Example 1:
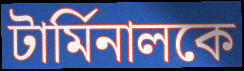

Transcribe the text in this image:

টার্মিনালকে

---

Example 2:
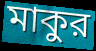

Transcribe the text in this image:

মাকুর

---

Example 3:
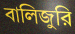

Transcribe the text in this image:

বালিজুরি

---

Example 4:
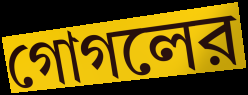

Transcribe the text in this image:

গোগলের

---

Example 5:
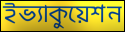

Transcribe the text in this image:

ইভ্যাকুয়েশন